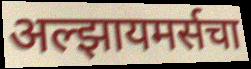
अल्झायमर्सचा